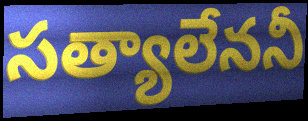
సత్యాలేననీ